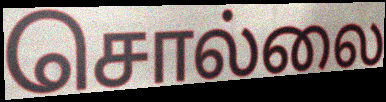
சொல்லை